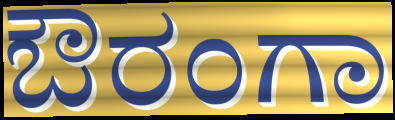
ಔರಂಗಾ